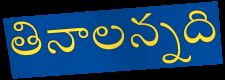
తినాలన్నది